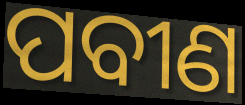
ପବୀଣ